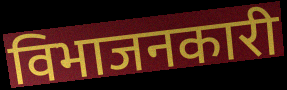
विभाजनकारी